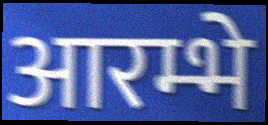
आरम्भे